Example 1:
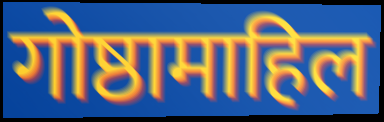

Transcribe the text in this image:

गोष्ठामाहिल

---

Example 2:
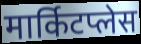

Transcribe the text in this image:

मार्किटप्लेस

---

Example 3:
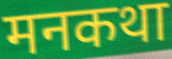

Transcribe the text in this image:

मनकथा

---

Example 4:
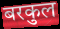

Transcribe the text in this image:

बरकुल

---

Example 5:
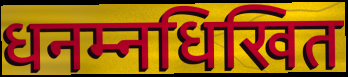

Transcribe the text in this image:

धनम्नधिखित